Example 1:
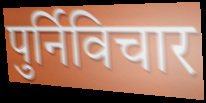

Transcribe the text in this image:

पुर्निविचार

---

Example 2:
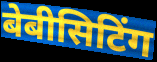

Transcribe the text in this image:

बेबीसिटिंग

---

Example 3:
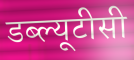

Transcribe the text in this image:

डब्ल्यूटीसी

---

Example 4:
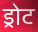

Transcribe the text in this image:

ड्रोट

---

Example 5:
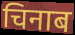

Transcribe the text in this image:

चिनाब